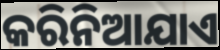
କରିନିଆଯାଏ